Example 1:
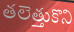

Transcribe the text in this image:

తలెత్తుకొని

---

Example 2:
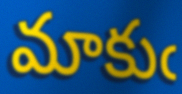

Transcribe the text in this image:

మాకుఁ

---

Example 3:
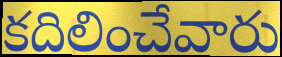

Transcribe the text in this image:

కదిలించేవారు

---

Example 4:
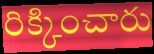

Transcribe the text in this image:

రిక్కించారు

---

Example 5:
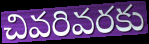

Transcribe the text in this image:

చివరివరకు